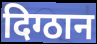
दिग्ठान